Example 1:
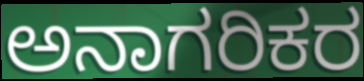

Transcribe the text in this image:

ಅನಾಗರಿಕರ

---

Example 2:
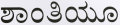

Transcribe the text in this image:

ಶಾಂತಿಯೂ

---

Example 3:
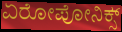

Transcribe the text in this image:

ಏರೋಪೋನಿಕ್ಸ್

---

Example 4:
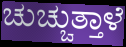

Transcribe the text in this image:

ಚುಚ್ಚುತ್ತಾಳೆ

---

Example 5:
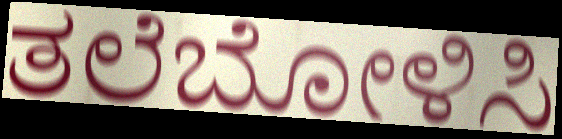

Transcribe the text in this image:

ತಲೆಬೋಳಿಸಿ